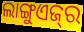
ଲାଙ୍ଗୁଏଜ୍‌ର